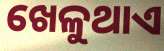
ଖେଳୁଥାଏ